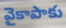
వైకాపాకు